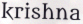
krishna